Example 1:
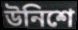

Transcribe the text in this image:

উনিশে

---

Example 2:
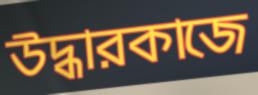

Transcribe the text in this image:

উদ্ধারকাজে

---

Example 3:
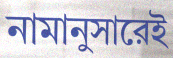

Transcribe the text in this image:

নামানুসারেই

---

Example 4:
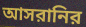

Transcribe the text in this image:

আসরানির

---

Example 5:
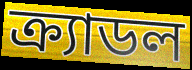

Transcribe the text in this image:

ক্র্যাডল